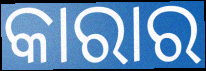
କାରାର